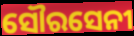
ସୌରସେନୀ